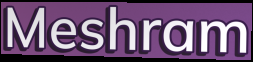
Meshram